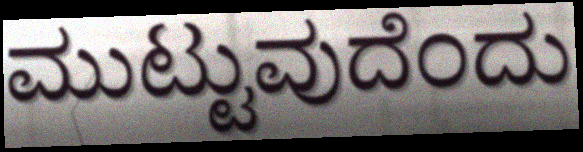
ಮುಟ್ಟುವುದೆಂದು